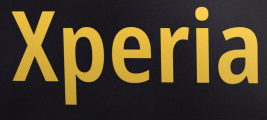
Xperia